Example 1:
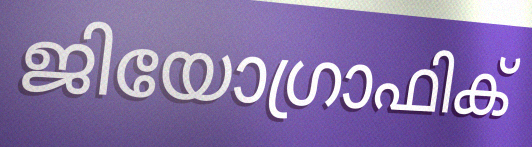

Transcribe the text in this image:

ജിയോഗ്രാഫിക്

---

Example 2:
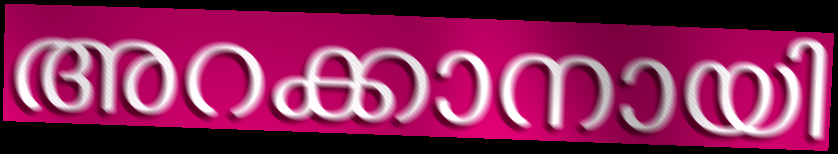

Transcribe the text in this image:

അറക്കാനായി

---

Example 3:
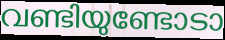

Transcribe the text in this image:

വണ്ടിയുണ്ടോടാ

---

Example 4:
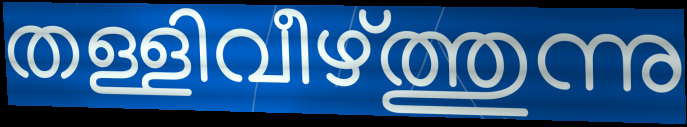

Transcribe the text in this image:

തള്ളിവീഴ്ത്തുന്നു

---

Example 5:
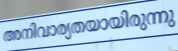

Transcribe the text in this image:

അനിവാര്യതയായിരുന്നു